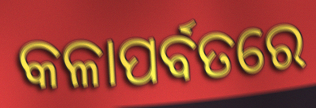
କଳାପର୍ବତରେ